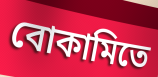
বোকামিতে